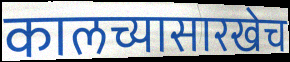
कालच्यासारखेच